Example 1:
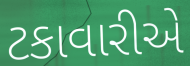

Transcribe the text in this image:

ટકાવારીએ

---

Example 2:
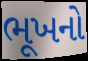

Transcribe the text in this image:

ભૂખનો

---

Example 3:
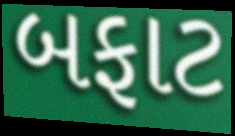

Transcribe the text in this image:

બફાટ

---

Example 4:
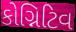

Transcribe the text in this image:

કોગ્નિટિવ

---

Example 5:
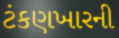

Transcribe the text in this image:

ટંકણખારની